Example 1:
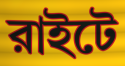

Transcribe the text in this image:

রাইটে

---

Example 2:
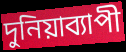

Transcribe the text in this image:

দুনিয়াব্যাপী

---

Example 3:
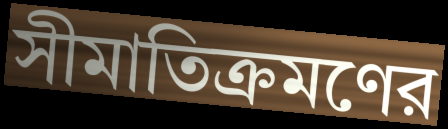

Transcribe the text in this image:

সীমাতিক্রমণের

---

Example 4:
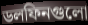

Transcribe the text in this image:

ডলফিনগুলো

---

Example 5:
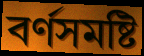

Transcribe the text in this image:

বর্ণসমষ্টি